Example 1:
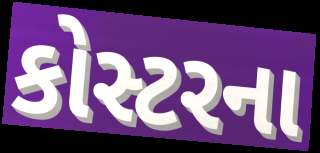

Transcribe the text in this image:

કોસ્ટરના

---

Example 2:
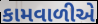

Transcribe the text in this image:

કામવાળીએ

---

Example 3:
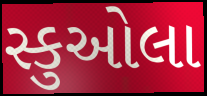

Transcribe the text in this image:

સ્કુઓલા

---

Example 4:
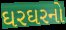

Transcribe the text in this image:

ઘરઘરનો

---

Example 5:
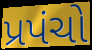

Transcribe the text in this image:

પ્રપંચો